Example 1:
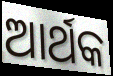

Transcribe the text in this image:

ଆର୍ଥକ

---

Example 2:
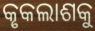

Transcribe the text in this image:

କୃକଲାଶକୁ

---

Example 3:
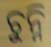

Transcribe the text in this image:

ଚୁନ୍ନି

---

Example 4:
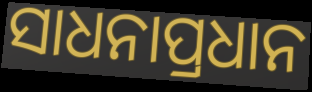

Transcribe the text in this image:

ସାଧନାପ୍ରଧାନ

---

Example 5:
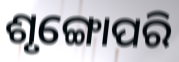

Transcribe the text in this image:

ଶୃଙ୍ଗୋପରି